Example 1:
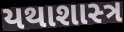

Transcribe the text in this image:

યથાશાસ્‍ત્ર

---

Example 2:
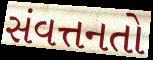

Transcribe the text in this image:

સંવત્તનતો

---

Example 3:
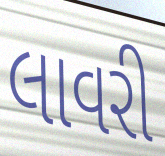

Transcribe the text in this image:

લાવરી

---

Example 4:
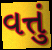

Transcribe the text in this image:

વત્તું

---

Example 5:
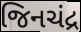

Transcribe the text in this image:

જિનચંદ્ર